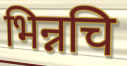
भिन्नचि